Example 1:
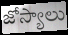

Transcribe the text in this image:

జోస్యాలు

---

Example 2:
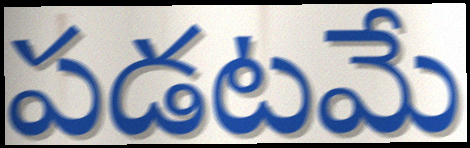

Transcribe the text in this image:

పడటమే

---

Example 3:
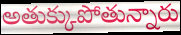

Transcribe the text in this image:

అతుక్కుపోతున్నారు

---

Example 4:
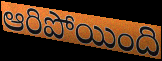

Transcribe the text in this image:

ఆరిపోయింది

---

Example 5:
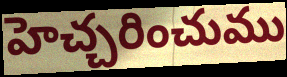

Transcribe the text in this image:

హెచ్చరించుము